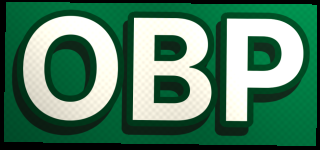
OBP